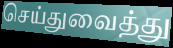
செய்துவைத்து